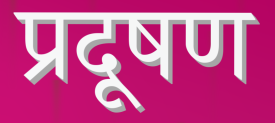
प्रदूषण